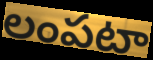
లంపటా